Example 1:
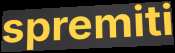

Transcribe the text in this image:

spremiti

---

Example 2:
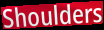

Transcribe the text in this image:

Shoulders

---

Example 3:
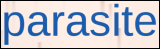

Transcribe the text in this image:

parasite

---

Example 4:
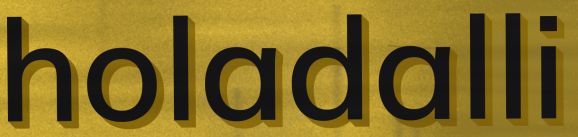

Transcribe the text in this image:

holadalli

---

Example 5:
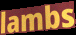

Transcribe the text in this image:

lambs